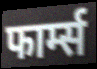
फार्म्स